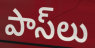
పాస్‌లు